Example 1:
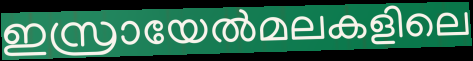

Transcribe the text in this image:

ഇസ്രായേൽമലകളിലെ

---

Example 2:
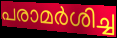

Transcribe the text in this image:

പരാമർശിച്ച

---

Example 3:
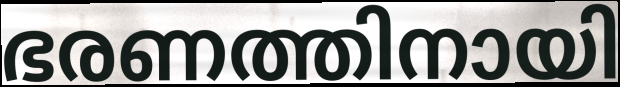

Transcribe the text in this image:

ഭരണത്തിനായി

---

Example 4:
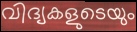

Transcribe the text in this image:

വിദ്യകളുടെയും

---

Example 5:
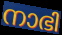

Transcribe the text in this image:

നാഭി